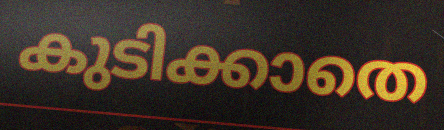
കുടിക്കാതെ